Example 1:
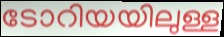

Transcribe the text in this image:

ടോറിയയിലുള്ള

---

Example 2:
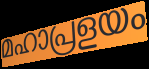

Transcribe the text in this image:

മഹാപ്രളയം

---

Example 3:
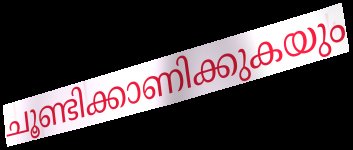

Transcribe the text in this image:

ചൂണ്ടിക്കാണിക്കുകയും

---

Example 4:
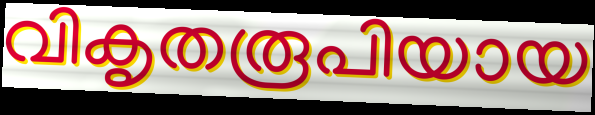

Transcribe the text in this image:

വികൃതരൂപിയായ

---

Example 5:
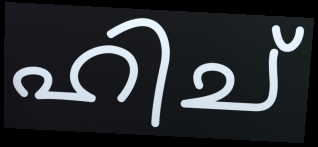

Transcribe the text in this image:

ഹിച്